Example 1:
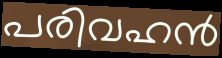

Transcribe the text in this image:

പരിവഹൻ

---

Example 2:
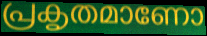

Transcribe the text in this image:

പ്രകൃതമാണോ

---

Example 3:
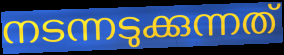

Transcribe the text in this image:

നടന്നടുക്കുന്നത്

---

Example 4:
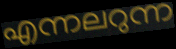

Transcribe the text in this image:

എന്നലറുന്ന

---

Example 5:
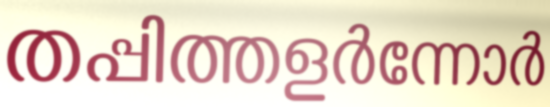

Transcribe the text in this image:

തപ്പിത്തളർന്നോർ